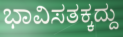
ಭಾವಿಸತಕ್ಕದ್ದು